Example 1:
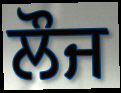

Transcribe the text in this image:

ਲੌਜ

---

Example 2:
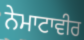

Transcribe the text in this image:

ਨੇਮਾਟਾਵੀਰ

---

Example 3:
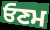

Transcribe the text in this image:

ਓਣਮ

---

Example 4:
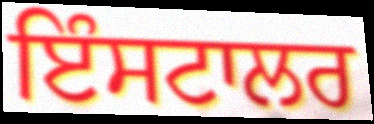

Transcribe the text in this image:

ਇੰਸਟਾਲਰ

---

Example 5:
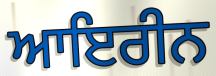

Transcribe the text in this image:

ਆਇਰੀਨ